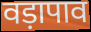
वड़ापाव